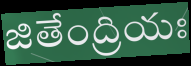
జితేంద్రియః